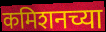
कमिशनच्या